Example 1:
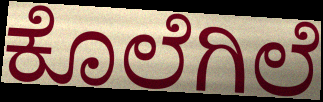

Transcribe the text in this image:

ಕೊಲೆಗಿಲೆ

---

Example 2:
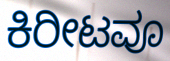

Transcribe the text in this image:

ಕಿರೀಟವೂ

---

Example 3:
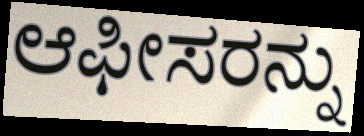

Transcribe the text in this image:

ಆಫೀಸರನ್ನು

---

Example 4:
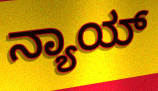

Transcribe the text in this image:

ನ್ಯಾಯ್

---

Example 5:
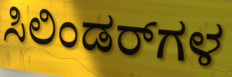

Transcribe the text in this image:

ಸಿಲಿಂಡರ್‌ಗಳ